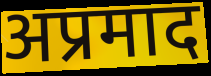
अप्रमाद